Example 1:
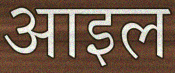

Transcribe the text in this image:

आइल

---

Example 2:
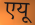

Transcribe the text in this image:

एयू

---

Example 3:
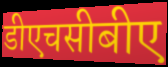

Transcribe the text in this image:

डीएचसीबीए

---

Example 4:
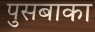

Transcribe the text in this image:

पुसबाका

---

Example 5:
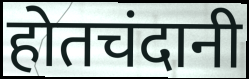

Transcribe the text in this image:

होतचंदानी